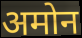
अमोन